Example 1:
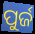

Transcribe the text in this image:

ପୁର୍ଜ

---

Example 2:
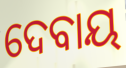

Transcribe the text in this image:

ଦେବାୟ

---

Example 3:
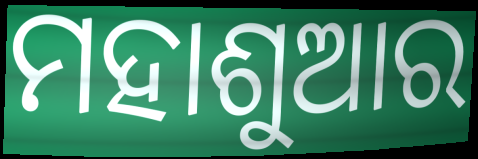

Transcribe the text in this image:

ମହାଶୁଆର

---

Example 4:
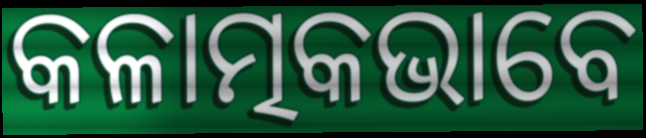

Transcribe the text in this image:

କଳାତ୍ମକଭାବେ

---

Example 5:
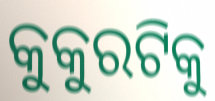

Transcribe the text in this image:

କୁକୁରଟିକୁ